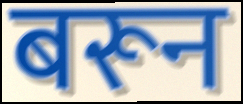
बरून